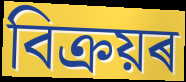
বিক্ৰয়ৰ